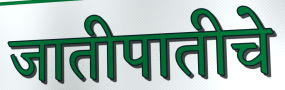
जातीपातीचे